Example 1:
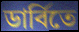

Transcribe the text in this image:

ডার্বিতে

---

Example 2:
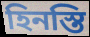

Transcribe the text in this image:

হিনস্তি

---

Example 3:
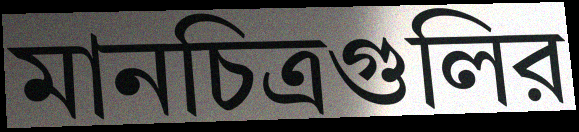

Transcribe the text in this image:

মানচিত্রগুলির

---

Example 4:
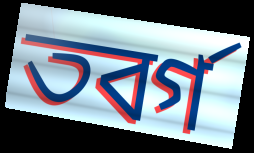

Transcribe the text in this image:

তবর্গ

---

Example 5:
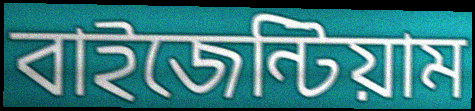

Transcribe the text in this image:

বাইজেন্টিয়াম